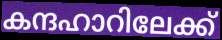
കന്ദഹാറിലേക്ക്